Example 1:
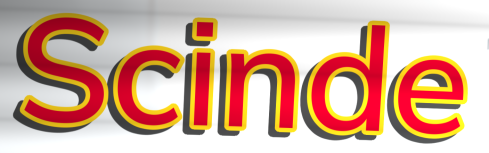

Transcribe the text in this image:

Scinde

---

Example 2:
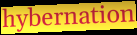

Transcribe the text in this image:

hybernation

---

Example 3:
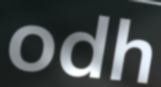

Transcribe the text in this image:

odh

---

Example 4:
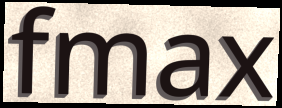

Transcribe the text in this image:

fmax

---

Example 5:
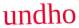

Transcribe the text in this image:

undho